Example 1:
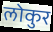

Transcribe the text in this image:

लोकुर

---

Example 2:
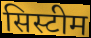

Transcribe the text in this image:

सिस्टीम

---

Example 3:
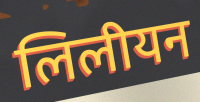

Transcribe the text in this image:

लिलीयन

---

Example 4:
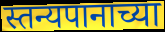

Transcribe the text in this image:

स्तन्यपानाच्या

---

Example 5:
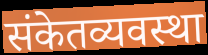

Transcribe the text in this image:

संकेतव्यवस्था